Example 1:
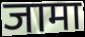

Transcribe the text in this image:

जामा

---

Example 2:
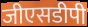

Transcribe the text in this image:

जीएसडीपी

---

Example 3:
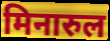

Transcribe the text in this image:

मिनारुल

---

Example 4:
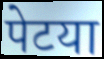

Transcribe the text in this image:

पेटया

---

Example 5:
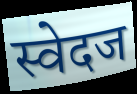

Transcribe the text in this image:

स्वेदज